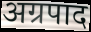
अग्रपाद